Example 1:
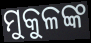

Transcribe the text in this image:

ମୁକୁଳଙ୍କ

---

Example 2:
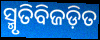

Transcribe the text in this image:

ସ୍ମୃତିବିଜଡ଼ିତ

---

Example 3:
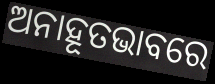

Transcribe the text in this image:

ଅନାହୂତଭାବରେ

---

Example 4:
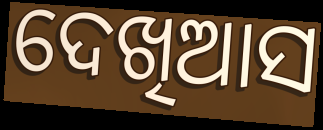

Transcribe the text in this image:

ଦେଖିଆସ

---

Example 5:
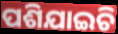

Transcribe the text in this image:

ପଶିଯାଇଚି